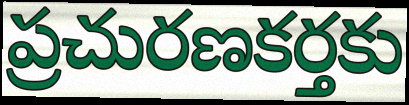
ప్రచురణకర్తకు